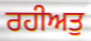
ਰਹੀਅਤੁ